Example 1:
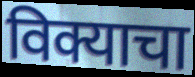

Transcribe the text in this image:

विक्याचा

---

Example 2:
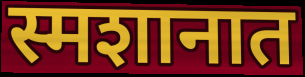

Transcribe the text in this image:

स्मशानात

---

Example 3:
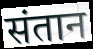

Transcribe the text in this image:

संतान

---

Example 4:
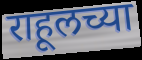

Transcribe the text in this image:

राहूलच्या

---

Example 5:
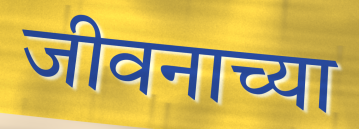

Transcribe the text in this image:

जीवनाच्या